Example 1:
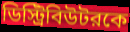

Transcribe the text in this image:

ডিস্ট্রিবিউটরকে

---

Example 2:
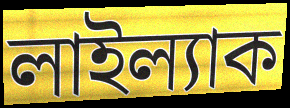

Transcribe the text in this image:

লাইল্যাক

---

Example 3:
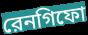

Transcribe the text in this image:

রেনগিফো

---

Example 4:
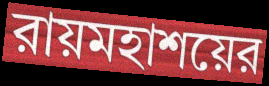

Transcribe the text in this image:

রায়মহাশয়ের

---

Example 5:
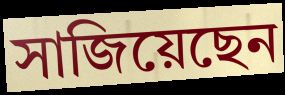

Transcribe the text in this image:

সাজিয়েছেন